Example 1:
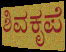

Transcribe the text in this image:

ಶಿವಕೃಪೆ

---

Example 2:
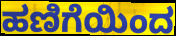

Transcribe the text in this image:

ಹಣಿಗೆಯಿಂದ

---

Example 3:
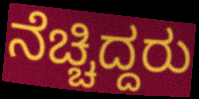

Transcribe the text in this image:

ನೆಚ್ಚಿದ್ದರು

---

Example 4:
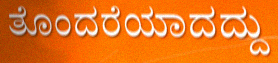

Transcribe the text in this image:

ತೊಂದರೆಯಾದದ್ದು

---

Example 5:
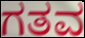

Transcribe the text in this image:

ಗತವ